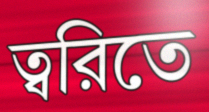
ত্বরিতে